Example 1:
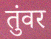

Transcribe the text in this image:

तुंवर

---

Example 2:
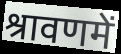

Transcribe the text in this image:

श्रावणमें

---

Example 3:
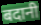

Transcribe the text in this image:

बदानी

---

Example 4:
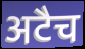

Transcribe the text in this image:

अटैच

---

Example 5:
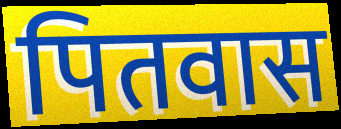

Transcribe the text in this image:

पितवास